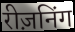
रीज़निंग